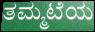
ತಮ್ಮಟೆಯ